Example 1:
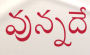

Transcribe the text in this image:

వున్నదే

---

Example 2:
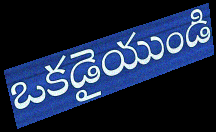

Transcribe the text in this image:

ఒకడైయుండి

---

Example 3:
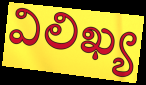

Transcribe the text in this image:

విలిఖ్య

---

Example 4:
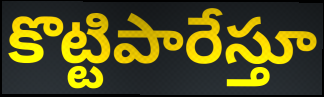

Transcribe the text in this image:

కొట్టిపారేస్తూ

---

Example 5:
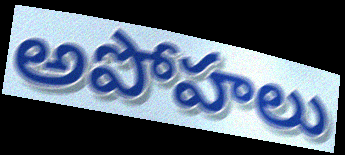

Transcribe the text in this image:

అపోహలు